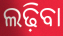
ଲଢ଼ିବା